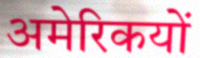
अमेरिकयों